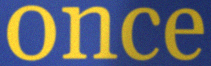
once